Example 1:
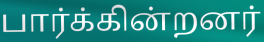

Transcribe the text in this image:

பார்க்கின்றனர்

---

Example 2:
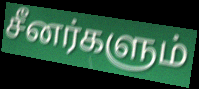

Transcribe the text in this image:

சீனர்களும்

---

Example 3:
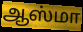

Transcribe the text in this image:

ஆஸ்மா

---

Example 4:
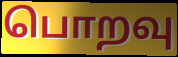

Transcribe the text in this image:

பொறவு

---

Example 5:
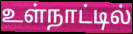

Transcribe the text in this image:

உள்நாட்டில்